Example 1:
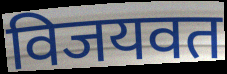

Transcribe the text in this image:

विजयवत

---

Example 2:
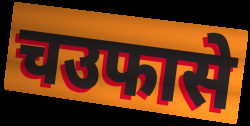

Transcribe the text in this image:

चउफासे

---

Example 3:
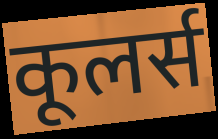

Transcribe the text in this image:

कूलर्स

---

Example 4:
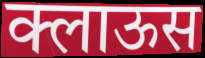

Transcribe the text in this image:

क्लाऊस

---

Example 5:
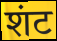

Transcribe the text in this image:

शंट